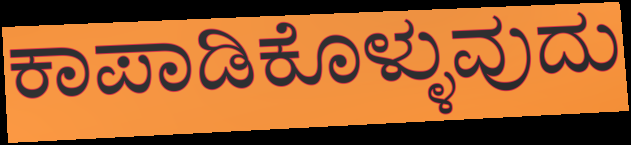
ಕಾಪಾಡಿಕೊಳ್ಳುವುದು